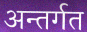
अन्तर्गत